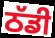
ਠੱਡੀ